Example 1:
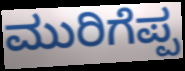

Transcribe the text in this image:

ಮುರಿಗೆಪ್ಪ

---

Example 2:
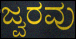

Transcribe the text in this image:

ಜ್ವರವು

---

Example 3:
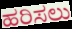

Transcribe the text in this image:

ಹರಿಸಲು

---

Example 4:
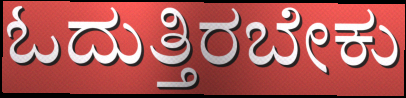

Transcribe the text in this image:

ಓದುತ್ತಿರಬೇಕು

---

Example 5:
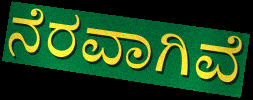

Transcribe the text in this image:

ನೆರವಾಗಿವೆ